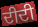
ਦੀਦੀ